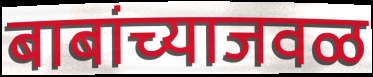
बाबांच्याजवळ